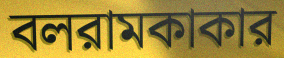
বলরামকাকার